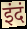
इंदं